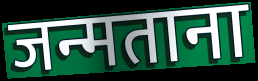
जन्मताना